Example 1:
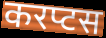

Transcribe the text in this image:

करप्टस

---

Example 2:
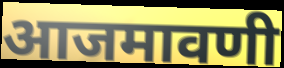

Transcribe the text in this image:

आजमावणी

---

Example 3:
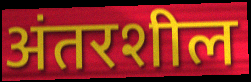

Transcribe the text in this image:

अंतरशील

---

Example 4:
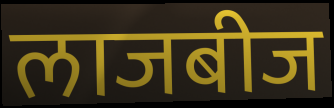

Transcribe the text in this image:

लाजबीज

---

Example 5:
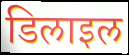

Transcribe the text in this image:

डिलाइल